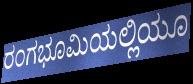
ರಂಗಭೂಮಿಯಲ್ಲಿಯೂ